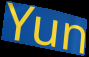
Yun